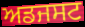
ਅਡਜਸਟ